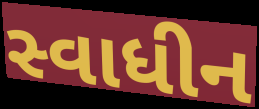
સ્વાધીન